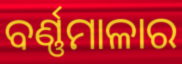
ବର୍ଣ୍ଣମାଳାର